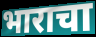
भाराचा